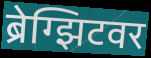
ब्रेग्झिटवर